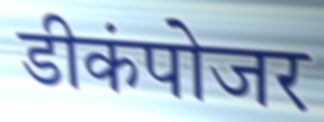
डीकंपोजर